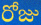
రోజు